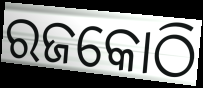
ରଜକୋଠି